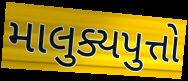
માલુક્યપુત્તો